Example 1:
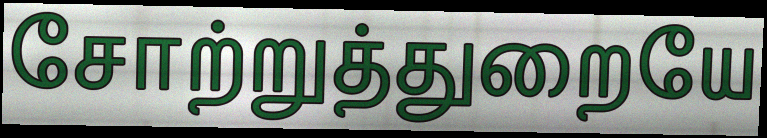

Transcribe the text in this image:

சோற்றுத்துறையே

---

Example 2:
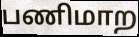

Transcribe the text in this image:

பணிமாற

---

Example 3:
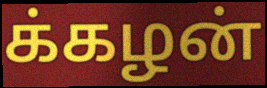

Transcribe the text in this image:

க்கழன்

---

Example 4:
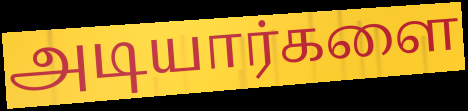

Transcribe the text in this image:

அடியார்களை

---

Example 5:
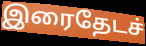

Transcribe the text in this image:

இரைதேடச்